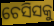
ଚେସିସକୁ